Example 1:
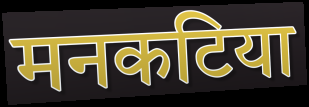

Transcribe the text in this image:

मनकटिया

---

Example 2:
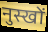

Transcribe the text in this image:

नुस्‍खों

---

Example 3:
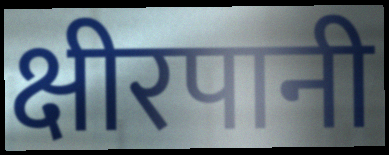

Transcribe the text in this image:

क्षीरपानी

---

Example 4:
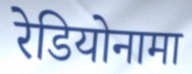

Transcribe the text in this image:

रेडियोनामा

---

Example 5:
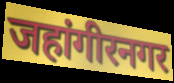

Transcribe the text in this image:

जहांगीरनगर